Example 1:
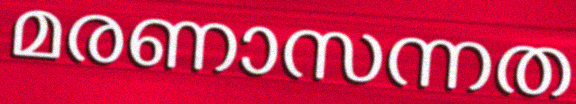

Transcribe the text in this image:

മരണാസന്നത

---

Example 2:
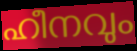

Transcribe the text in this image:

ഹീനവും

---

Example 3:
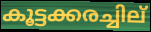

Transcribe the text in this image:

കൂട്ടക്കരച്ചില്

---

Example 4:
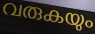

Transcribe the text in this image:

വരുകയും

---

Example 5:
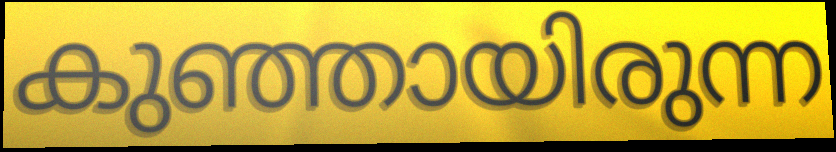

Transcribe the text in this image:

കുഞ്ഞായിരുന്ന